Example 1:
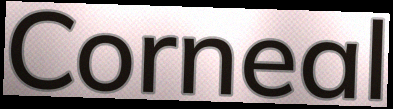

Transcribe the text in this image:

Corneal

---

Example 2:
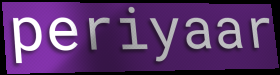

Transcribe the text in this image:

periyaar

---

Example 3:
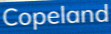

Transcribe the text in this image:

Copeland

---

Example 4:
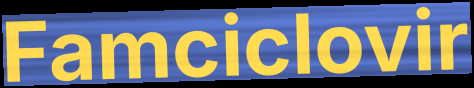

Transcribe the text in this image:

Famciclovir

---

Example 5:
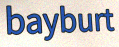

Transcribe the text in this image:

bayburt